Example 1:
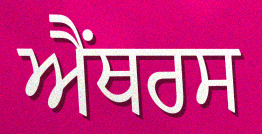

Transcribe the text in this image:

ਐਂਥਰਸ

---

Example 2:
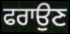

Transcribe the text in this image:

ਫਰਾਉਣ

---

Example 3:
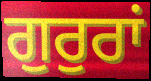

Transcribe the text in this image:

ਗੁਰੁਰਾਂ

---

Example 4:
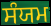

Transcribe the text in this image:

ਸੰਯਮ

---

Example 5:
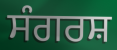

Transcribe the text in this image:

ਸੰਗਰਸ਼